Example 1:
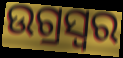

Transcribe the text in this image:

ଉଗ୍ରସ୍ୱର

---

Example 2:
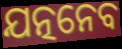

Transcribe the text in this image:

ଯତ୍ନନେବ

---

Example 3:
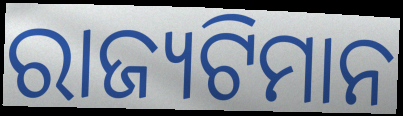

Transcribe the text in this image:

ରାଜ୍ୟଟିମାନ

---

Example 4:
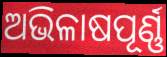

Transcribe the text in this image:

ଅଭିଳାଷପୂର୍ଣ୍ଣ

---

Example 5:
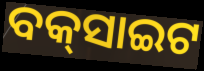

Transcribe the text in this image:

ବକ୍‌ସାଇଟ